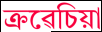
ক্ৰৱেচিয়া